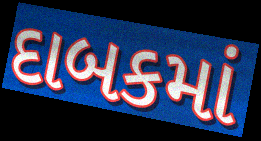
દાબકમાં